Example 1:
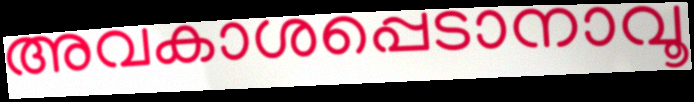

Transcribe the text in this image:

അവകാശപ്പെടാനാവൂ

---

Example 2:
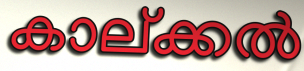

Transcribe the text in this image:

കാല്ക്കൽ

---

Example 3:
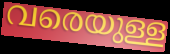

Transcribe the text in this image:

വരെയുള്ള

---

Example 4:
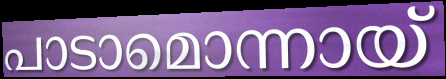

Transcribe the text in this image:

പാടാമൊന്നായ്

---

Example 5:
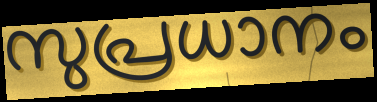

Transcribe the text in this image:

സുപ്രധാനം